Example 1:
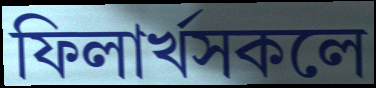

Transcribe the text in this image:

ফিলাৰ্খসকলে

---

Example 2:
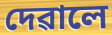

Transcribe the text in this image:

দেৱালে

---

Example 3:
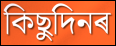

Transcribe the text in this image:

কিছুদিনৰ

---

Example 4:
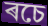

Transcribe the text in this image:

ৰচে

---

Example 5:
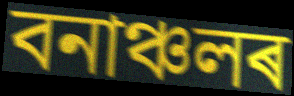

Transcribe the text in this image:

বনাঞ্চলৰ